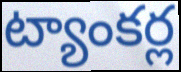
ట్యాంకర్ల